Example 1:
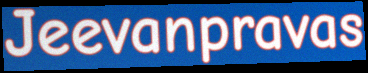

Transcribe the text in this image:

Jeevanpravas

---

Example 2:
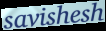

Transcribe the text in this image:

savishesh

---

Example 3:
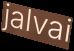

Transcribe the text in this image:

jalvai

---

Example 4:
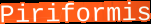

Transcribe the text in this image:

Piriformis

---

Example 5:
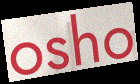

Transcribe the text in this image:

osho